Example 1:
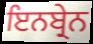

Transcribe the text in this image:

ਇਨਬ੍ਰੇਨ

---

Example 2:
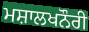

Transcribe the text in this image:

ਮਸ਼ਾਲਖਨੌਰੀ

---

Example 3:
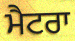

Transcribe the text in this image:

ਮੈਟਰਾ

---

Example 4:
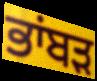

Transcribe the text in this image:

ਭਾਂਬੜ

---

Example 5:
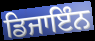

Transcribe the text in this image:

ਡਿਜਾਇੰਨ